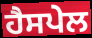
ਹੈਸਪੇਲ